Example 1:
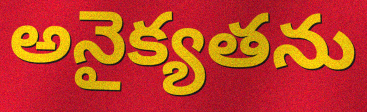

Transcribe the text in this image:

అనైక్యతను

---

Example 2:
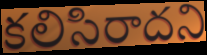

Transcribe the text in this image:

కలిసిరాదని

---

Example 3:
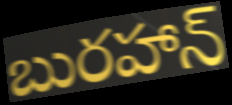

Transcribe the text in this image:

బురహాన్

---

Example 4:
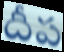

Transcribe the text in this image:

దీప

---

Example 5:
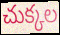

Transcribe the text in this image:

చుక్కల